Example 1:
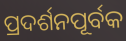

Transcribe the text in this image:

ପ୍ରଦର୍ଶନପୂର୍ବକ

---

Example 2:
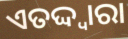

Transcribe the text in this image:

ଏତଦ୍ଦ୍ୱାରା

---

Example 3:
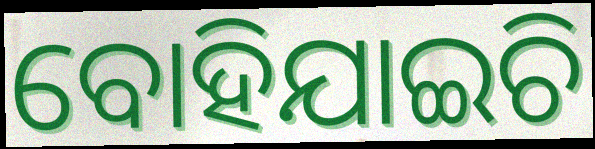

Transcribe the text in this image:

ବୋହିଯାଇଚି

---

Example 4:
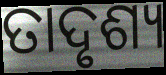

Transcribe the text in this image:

ତାଦୃଶ୍ୟ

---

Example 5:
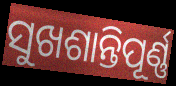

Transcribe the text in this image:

ସୁଖଶାନ୍ତିପୂର୍ଣ୍ଣ